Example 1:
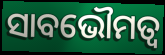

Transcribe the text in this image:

ସାବଭୌମତ୍ୱ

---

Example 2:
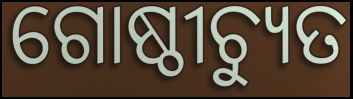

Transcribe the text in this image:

ଗୋଷ୍ଠୀଚ୍ୟୁତ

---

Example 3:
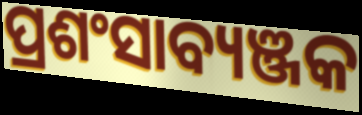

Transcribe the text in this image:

ପ୍ରଶଂସାବ୍ୟଞ୍ଜକ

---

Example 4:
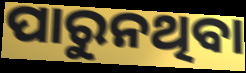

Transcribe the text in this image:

ପାରୁନଥିବା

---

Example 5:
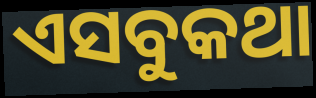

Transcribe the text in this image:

ଏସବୁକଥା